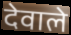
देवाले